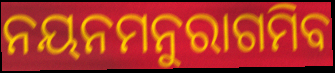
ନୟନମନୁରାଗମିବ